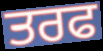
ਤਰਫ